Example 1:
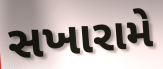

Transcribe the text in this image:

સખારામે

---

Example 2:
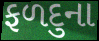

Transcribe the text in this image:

ફળદુના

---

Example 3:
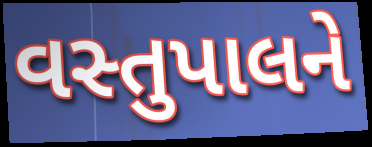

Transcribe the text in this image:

વસ્તુપાલને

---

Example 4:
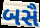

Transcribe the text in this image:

બસૈ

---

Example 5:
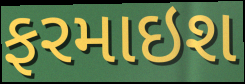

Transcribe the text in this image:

ફરમાઇશ